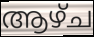
ആഴ്ച